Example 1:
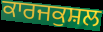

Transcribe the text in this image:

ਕਾਰਜਕੁਸ਼ਲ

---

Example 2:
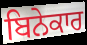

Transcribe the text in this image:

ਬਿਨੇਕਾਰ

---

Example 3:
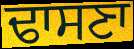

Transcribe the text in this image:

ਢਾਸਣਾ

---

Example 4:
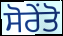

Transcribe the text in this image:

ਸੋਰੇਂਤੋ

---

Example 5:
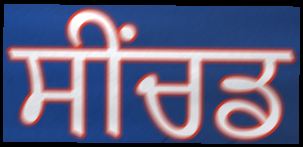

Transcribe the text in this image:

ਸੀਂਚਡ